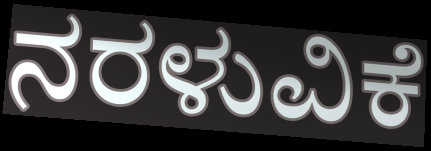
ನರಳುವಿಕೆ